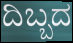
ದಿಬ್ಬದ